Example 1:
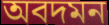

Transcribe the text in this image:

অবদমন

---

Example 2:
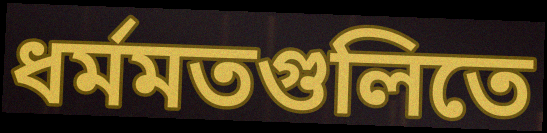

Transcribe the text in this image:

ধর্মমতগুলিতে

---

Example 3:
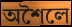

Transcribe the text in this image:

অশৈলে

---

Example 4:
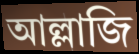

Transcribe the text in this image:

আল্লাজি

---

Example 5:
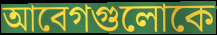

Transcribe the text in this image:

আবেগগুলোকে